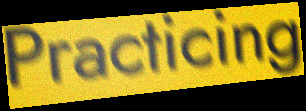
Practicing